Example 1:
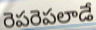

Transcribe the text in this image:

రెపరెపలాడే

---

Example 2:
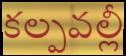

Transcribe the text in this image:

కల్పవల్లీ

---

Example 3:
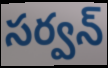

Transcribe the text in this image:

సర్వన్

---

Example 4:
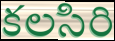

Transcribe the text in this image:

కలసిరి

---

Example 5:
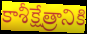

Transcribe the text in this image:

కాశీక్షేత్రానికి